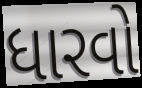
ધારવો